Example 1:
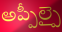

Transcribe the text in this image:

అప్పీల్పై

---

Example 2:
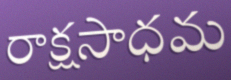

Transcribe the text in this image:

రాక్షసాధమ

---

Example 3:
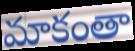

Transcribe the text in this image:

మాకంతా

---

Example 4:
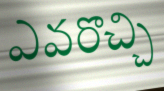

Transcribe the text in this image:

ఎవరొచ్చి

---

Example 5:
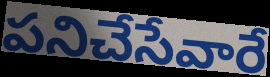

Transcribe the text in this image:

పనిచేసేవారే